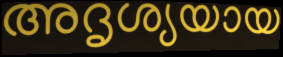
അദൃശ്യയായ